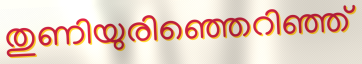
തുണിയുരിഞ്ഞെറിഞ്ഞ്